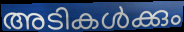
അടികൾക്കും